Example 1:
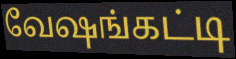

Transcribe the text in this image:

வேஷங்கட்டி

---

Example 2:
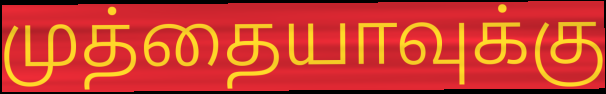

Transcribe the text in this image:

முத்தையாவுக்கு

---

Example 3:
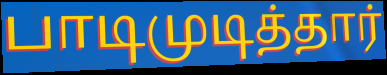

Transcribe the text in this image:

பாடிமுடித்தார்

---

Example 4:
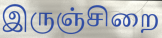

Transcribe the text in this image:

இருஞ்சிறை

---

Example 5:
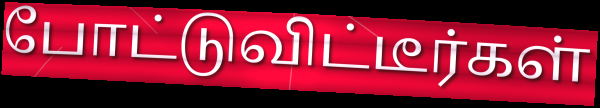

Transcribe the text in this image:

போட்டுவிட்டீர்கள்